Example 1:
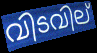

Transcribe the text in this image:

വിടവില്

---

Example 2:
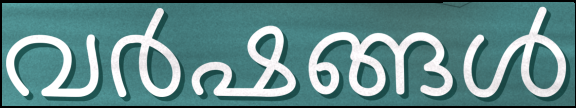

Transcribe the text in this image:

വർഷങ്ങൾ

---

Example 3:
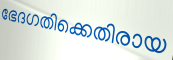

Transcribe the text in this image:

ഭേദഗതിക്കെതിരായ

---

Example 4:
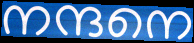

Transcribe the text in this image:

നന്ദനെ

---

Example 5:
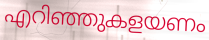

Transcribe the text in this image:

എറിഞ്ഞുകളയണം